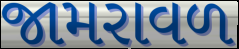
જામરાવળ